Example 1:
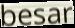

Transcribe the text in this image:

besar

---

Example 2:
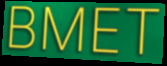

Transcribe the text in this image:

BMET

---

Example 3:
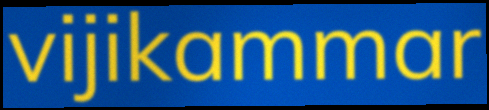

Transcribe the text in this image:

vijikammar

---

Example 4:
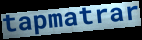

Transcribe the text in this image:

tapmatrar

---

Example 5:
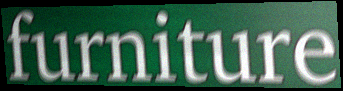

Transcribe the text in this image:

furniture